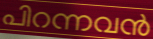
പിറന്നവൻ